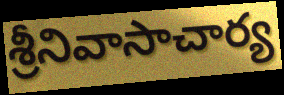
శ్రీనివాసాచార్య